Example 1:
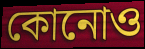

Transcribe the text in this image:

কোনোও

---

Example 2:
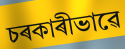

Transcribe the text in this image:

চৰকাৰীভাৱে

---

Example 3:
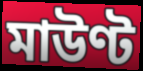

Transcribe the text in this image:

মাউণ্ট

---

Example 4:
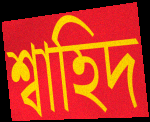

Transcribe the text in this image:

শ্বাহিদ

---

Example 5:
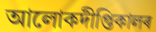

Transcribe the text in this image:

আলোকদীপ্তিকালৰ